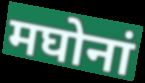
मघोनां